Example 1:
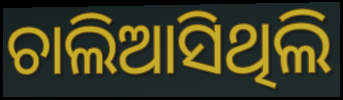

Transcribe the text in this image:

ଚାଲିଆସିଥିଲି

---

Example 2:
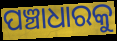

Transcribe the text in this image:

ପଞ୍ଚାଧାରକୁ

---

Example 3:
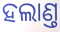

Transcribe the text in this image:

ହଲାଣ୍ତ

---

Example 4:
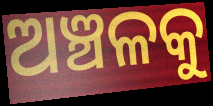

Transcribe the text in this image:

ଅଞ୍ଚଳକୁ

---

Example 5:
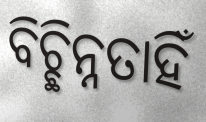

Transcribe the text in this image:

ବିଚ୍ଛିନ୍ନତାହିଁ